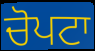
ਚੋਪਟਾ